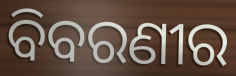
ବିବରଣୀର